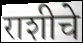
राशीचे